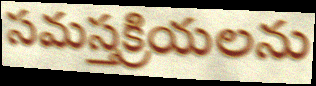
సమస్తక్రియలను